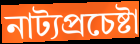
নাট্যপ্রচেষ্টা